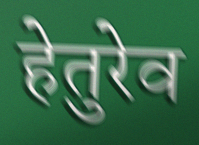
हेतुरेव